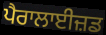
ਪੈਰਾਲਾਈਜ਼ਡ